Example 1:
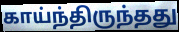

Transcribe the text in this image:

காய்ந்திருந்தது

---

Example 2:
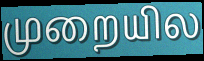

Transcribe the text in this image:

முறையில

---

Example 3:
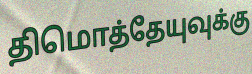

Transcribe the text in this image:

திமொத்தேயுவுக்கு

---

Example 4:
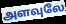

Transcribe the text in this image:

அளவுலே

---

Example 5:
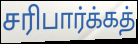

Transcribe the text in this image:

சரிபார்க்கத்